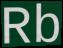
Rb